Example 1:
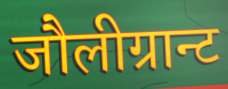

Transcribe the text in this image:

जौलीग्रान्ट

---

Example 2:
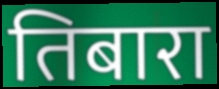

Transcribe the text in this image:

तिबारा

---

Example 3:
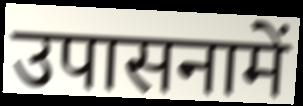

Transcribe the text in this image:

उपासनामें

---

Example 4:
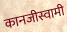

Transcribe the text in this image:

कानजीस्वामी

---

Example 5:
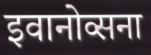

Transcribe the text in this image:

इवानोव्सना